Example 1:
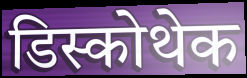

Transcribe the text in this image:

डिस्कोथेक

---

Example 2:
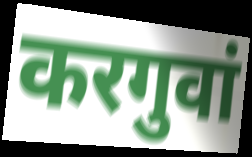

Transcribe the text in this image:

करगुवां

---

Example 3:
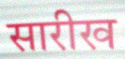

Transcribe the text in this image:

सारीख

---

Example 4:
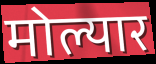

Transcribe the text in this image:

मोल्यार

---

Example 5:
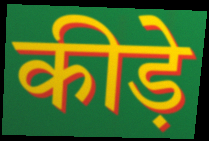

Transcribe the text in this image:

कीड़े